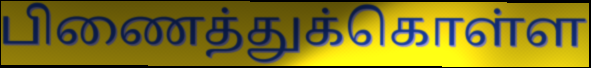
பிணைத்துக்கொள்ள